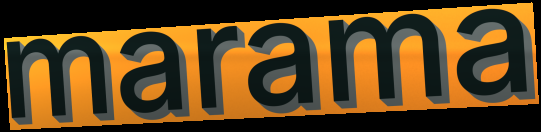
marama